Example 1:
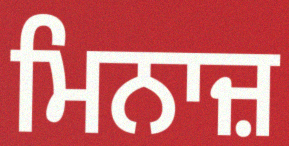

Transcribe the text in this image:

ਮਿਨਾਜ਼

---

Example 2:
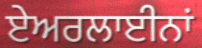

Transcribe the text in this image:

ਏਅਰਲਾਈਨਾਂ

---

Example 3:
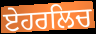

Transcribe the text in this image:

ਏਹਰਲਿਚ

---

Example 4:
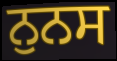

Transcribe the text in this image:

ਨੁਨਸ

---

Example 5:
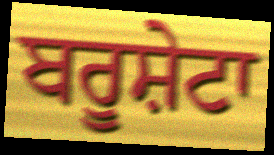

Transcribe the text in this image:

ਬਰੂਸ਼ੇਟਾ